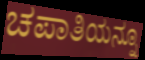
ಚಪಾತಿಯನ್ನೂ